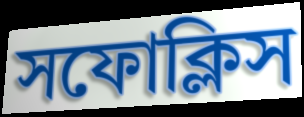
সফোক্লিস